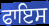
ਫਾਇਸ